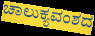
ಚಾಲುಕ್ಯವಂಶದ